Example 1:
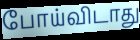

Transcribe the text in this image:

போய்விடாது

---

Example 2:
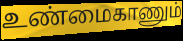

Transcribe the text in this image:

உண்மைகாணும்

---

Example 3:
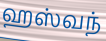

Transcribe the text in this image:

ஹஸ்வந்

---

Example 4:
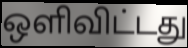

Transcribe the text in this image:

ஒளிவிட்டது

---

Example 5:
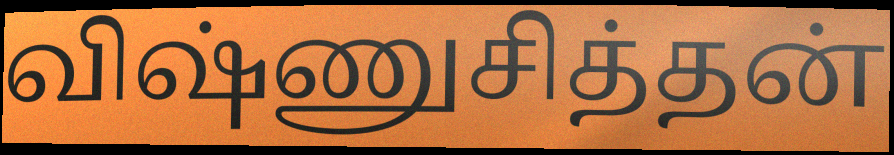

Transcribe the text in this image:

விஷ்ணுசித்தன்